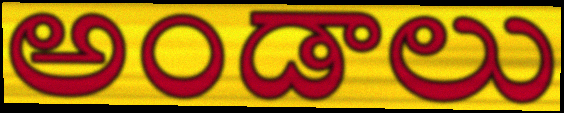
అండాలు